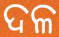
ଦଳ